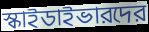
স্কাইডাইভারদের